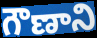
గౌణాని